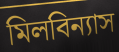
মিলবিন্যাস